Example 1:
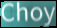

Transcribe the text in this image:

Choy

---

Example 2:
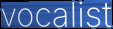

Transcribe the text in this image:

vocalist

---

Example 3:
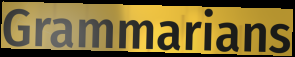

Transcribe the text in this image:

Grammarians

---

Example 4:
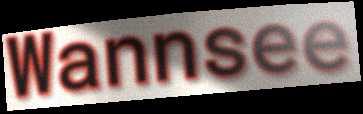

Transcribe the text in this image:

Wannsee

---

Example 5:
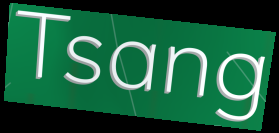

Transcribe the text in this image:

Tsang